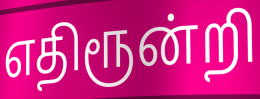
எதிரூன்றி